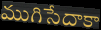
ముగిసేదాకా